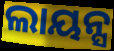
ଲାୟନ୍ସ